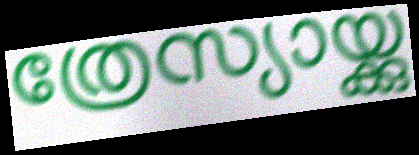
ത്രേസ്യായ്ക്കു